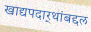
खाद्यपदार्थांबद्दल